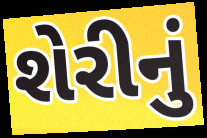
શેરીનું